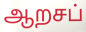
ஆறசப்